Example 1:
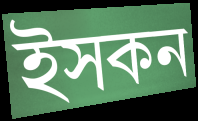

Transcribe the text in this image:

ইসকন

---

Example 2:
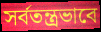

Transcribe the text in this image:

সর্বতন্ত্রভাবে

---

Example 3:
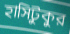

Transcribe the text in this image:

হাসিটুকুর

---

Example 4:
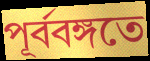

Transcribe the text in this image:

পূর্ববঙ্গতে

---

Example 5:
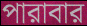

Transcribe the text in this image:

পারাবার